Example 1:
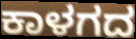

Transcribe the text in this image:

ಕಾಳಗದ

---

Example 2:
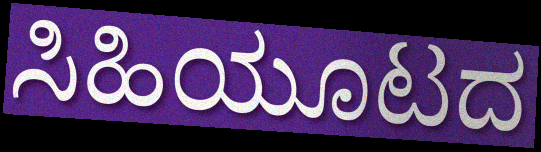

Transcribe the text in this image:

ಸಿಹಿಯೂಟದ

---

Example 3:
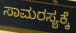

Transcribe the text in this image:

ಸಾಮರಸ್ಯಕ್ಕೆ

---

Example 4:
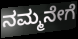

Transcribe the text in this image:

ನಮ್ಮನೇಗೆ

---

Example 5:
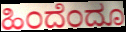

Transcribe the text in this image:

ಹಿಂದೆಂದೂ